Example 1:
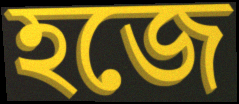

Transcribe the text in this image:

হজে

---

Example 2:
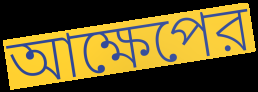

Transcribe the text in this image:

আক্ষেপের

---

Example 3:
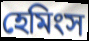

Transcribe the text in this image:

হেমিংস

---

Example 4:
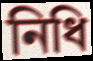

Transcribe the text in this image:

নিধি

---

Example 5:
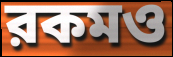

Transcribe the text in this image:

রকমও